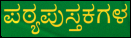
ಪಠ್ಯಪುಸ್ತಕಗಳ